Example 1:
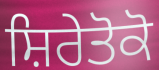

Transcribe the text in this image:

ਸ਼ਿਰੇਤੋਕੋ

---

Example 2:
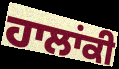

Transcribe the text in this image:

ਹਾਲਾਂਕੀ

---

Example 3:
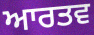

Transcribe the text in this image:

ਆਰਤਵ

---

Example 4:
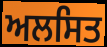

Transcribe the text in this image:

ਅਲਸਿਤ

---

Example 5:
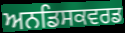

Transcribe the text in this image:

ਅਨਡਿਸਕਵਰਡ